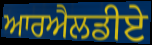
ਆਰਐਲਡੀਏ